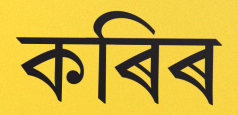
কৰিৰ